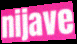
nijave